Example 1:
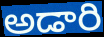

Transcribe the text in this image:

అడారి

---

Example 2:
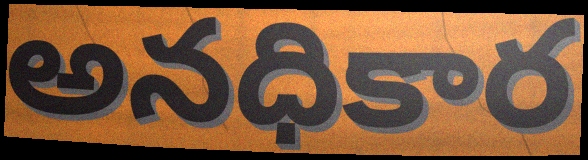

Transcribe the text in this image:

అనధికార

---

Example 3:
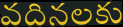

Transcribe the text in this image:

వదినలకు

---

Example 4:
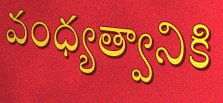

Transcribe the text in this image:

వంధ్యత్వానికి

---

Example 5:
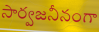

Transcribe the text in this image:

సార్వజనీనంగా